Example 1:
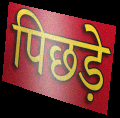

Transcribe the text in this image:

पिछड़े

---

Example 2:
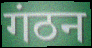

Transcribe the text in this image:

गंठन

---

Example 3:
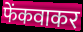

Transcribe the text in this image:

फेंकवाकर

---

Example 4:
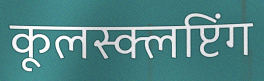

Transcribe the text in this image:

कूलस्क्लप्टिंग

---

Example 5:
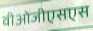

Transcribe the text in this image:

वीओजीएसएस